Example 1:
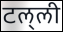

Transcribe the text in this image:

टल्ली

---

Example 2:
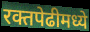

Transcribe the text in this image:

रक्तपेढीमध्ये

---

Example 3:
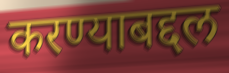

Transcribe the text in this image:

करण्याबद्दल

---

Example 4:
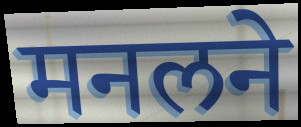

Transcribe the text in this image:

मनलने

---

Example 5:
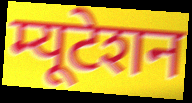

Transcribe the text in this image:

म्यूटेशन